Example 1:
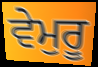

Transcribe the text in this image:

ਵੇਮੁਰੂ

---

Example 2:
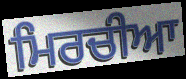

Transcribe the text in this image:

ਮਿਰਚੀਆ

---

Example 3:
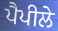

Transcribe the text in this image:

ਪੈਪੀਲੇ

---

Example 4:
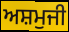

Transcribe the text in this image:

ਅਸ਼ਮੁਜੀ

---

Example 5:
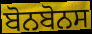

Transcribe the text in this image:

ਬੋਨਬੋਨਸ